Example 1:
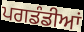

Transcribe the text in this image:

ਪਗਡੰਡੀਆਂ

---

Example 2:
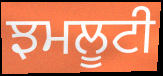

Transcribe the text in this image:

ਝਮਲੂਟੀ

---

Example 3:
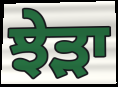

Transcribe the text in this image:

ਝੇੜਾ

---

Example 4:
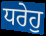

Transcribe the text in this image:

ਧਰੇਹੁ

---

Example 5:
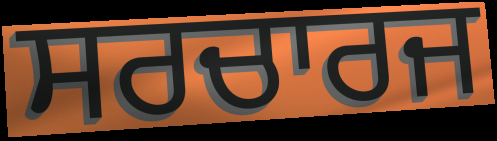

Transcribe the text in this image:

ਸਰਚਾਰਜ